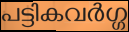
പട്ടികവർഗ്ഗ